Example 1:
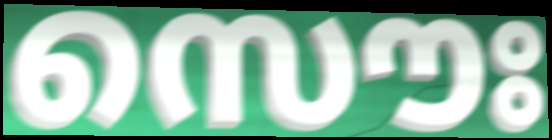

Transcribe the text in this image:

സൌഃ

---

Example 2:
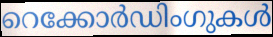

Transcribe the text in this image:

റെക്കോർഡിംഗുകൾ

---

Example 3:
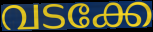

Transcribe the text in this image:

വടക്കേ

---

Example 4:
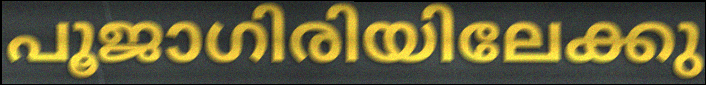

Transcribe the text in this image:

പൂജാഗിരിയിലേക്കു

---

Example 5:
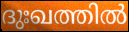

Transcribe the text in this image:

ദുഃഖത്തിൽ